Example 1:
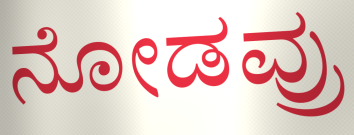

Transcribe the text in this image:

ನೋಡವ್ರು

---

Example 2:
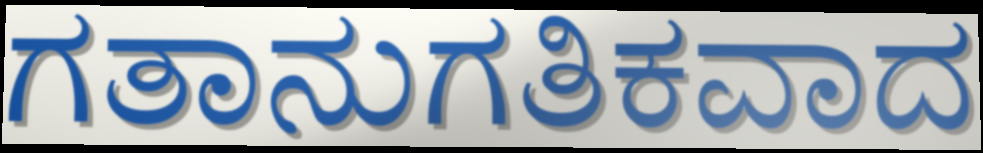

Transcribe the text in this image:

ಗತಾನುಗತಿಕವಾದ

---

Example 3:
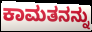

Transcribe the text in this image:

ಕಾಮತನನ್ನು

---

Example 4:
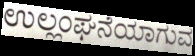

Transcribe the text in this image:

ಉಲ್ಲಂಘನೆಯಾಗುವ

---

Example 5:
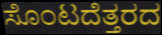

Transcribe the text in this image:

ಸೊಂಟದೆತ್ತರದ